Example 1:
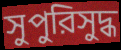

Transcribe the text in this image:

সুপুরিসুদ্ধ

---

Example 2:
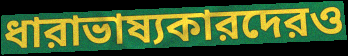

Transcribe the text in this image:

ধারাভাষ্যকারদেরও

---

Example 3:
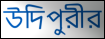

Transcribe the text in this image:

উদিপুরীর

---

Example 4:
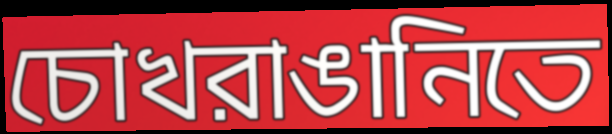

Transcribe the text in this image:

চোখরাঙানিতে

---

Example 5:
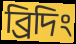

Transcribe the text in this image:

ব্রিদিং